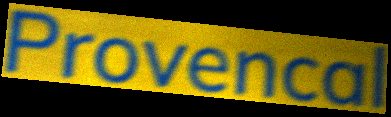
Provencal